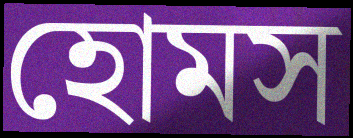
হোমস